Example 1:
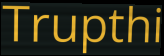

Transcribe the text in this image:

Trupthi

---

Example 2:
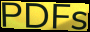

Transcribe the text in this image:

PDFs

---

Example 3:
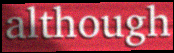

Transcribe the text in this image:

although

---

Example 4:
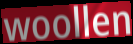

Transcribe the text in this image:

woollen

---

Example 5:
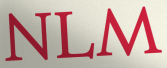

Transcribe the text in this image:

NLM